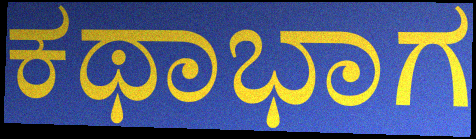
ಕಥಾಭಾಗ